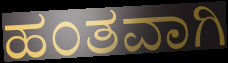
ಹಂತವಾಗಿ